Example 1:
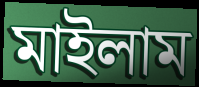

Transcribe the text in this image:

মাইলাম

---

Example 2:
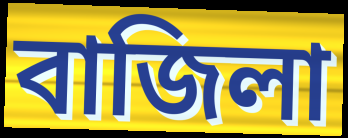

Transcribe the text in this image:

বাজিলা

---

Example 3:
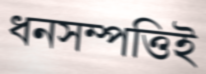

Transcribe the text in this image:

ধনসম্পত্তিই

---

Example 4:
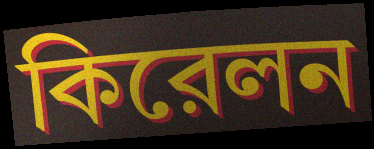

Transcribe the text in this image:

কিরেলন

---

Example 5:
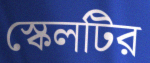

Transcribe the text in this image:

স্কেলটির